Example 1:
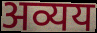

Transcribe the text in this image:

अव्यय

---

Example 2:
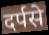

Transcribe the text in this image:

दर्पसे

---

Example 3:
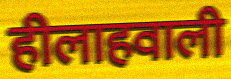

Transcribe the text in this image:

हीलाहवाली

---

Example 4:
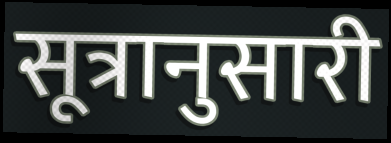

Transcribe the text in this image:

सूत्रानुसारी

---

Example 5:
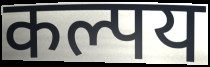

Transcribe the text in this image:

कल्पय